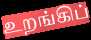
உறங்கிப்